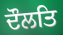
ਦੌਲਤਿ